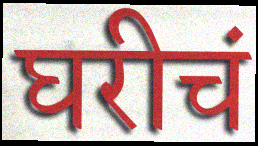
घरीचं